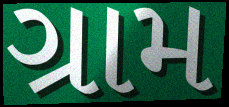
ગ્રામ